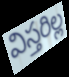
విస్తరిల్ల